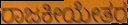
ರಾಜಕೀಯೇತರ